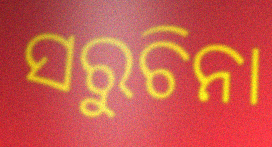
ସରୁଚିନା